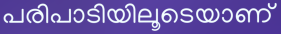
പരിപാടിയിലൂടെയാണ്